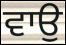
ਵਾਉ